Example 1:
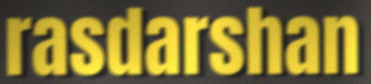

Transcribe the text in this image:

rasdarshan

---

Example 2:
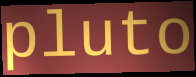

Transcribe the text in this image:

pluto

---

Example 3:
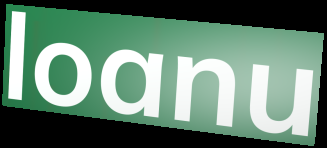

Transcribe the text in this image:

loanu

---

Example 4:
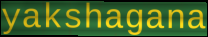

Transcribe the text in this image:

yakshagana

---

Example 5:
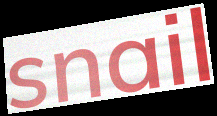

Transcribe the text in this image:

snail